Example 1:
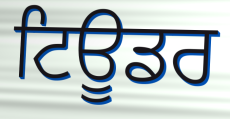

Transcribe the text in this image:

ਟਿਊਡਰ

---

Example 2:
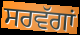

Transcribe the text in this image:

ਸਰਵੱਗਾਂ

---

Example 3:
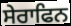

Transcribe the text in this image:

ਸੇਰਾਫਿਨ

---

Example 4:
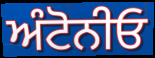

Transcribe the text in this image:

ਅੰਟੋਨੀਓ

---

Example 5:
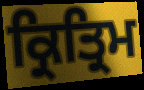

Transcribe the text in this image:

ਕ੍ਰਿਤ੍ਰਿਮ